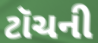
ટૉચની